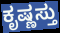
ಕೃಷ್ಣಸ್ತು